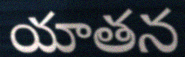
యాతన